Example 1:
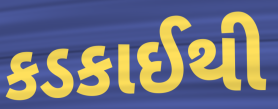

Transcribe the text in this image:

કડકાઈથી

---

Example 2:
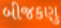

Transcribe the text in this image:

બીજકણુ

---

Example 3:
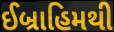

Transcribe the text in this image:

ઈબ્રાહિમથી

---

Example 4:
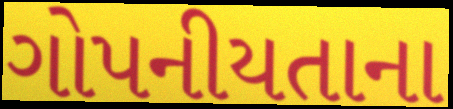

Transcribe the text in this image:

ગોપનીયતાના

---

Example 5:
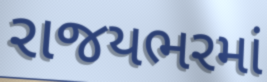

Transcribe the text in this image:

રાજયભરમાં